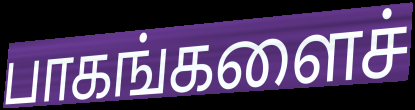
பாகங்களைச்